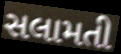
સલામતી